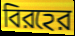
বিরহের